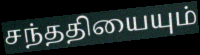
சந்ததியையும்